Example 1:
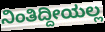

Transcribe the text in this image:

ನಿಂತಿದ್ದೀಯಲ್ಲ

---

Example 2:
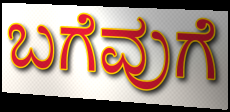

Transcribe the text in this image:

ಬಗೆವುಗೆ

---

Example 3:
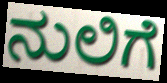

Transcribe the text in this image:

ನುಲಿಗೆ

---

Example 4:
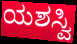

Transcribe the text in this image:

ಯಶಸ್ವಿ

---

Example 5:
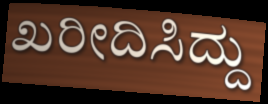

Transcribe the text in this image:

ಖರೀದಿಸಿದ್ದು